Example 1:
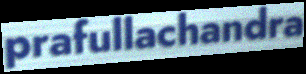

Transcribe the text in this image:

prafullachandra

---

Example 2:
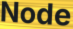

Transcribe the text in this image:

Node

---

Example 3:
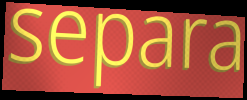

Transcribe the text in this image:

separa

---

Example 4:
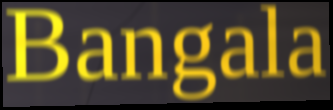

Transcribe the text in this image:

Bangala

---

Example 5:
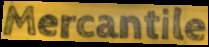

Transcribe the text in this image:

Mercantile